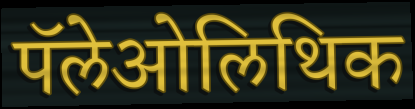
पॅलेओलिथिक